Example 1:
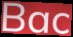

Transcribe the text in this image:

Bac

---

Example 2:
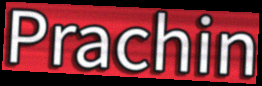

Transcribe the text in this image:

Prachin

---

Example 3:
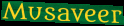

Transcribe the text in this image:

Musaveer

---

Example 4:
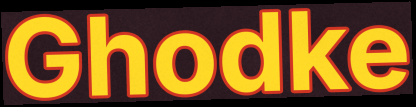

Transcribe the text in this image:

Ghodke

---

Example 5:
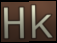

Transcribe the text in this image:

Hk